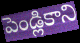
పెండ్లికాని